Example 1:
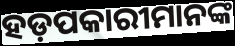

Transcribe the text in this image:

ହଡ଼ପକାରୀମାନଙ୍କ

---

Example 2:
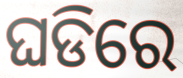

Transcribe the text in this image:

ଘଡିରେ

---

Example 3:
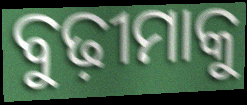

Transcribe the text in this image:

ବୁଢ଼ୀମାକୁ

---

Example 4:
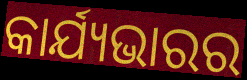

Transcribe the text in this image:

କାର୍ଯ୍ୟଭାରର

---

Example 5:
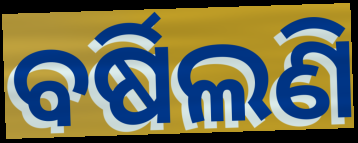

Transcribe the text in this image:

ବର୍ଷିଲଣି